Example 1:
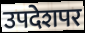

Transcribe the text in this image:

उपदेशपर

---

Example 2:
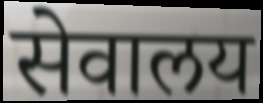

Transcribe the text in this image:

सेवालय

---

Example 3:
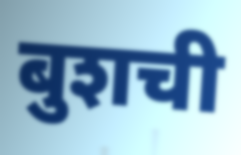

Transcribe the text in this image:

बुशची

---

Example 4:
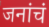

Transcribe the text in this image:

जनांचं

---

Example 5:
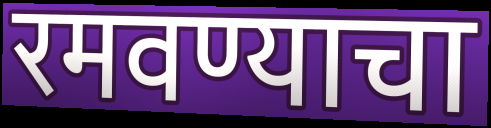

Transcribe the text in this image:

रमवण्याचा